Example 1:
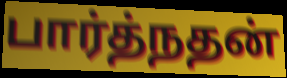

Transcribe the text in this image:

பார்த்நதன்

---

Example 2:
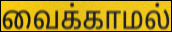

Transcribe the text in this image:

வைக்காமல்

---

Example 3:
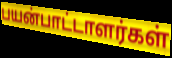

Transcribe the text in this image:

பயன்பாட்டாளர்கள்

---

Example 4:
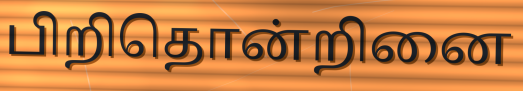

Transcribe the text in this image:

பிறிதொன்றினை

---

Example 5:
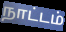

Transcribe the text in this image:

நாட்டம்